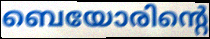
ബെയോരിന്റെ